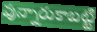
వున్నారుకాబట్టి